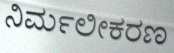
ನಿರ್ಮಲೀಕರಣ